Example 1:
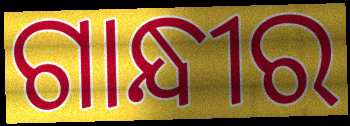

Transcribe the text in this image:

ଗାନ୍ଧୀର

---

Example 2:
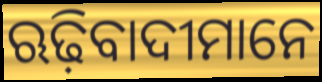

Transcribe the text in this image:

ଋଢ଼ିବାଦୀମାନେ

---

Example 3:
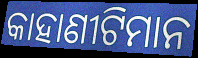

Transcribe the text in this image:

କାହାଣୀଟିମାନ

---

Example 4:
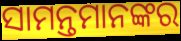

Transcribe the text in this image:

ସାମନ୍ତମାନଙ୍କର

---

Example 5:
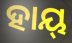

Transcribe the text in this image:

ହାୟ୍